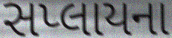
સપ્લાયના